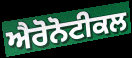
ਐਰੋਨੋਟੀਕਲ